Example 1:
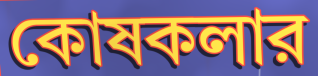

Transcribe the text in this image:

কোষকলার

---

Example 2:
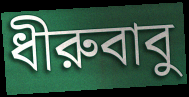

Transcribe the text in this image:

ধীরুবাবু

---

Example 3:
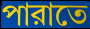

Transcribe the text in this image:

পারাতে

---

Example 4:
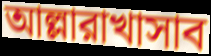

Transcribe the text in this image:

আল্লারাখাসাব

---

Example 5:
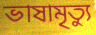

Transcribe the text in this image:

ভাষামৃত্যু